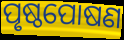
ପୃଷ୍ଠପୋଷଣ